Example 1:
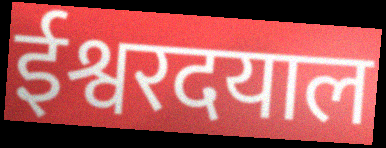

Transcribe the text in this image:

ईश्वरदयाल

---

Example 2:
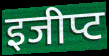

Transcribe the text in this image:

इजीप्ट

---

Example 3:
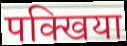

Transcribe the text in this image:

पक्खिया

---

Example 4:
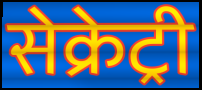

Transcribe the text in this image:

सेक्रेट्री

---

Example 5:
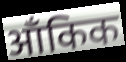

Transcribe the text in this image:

आँकिक